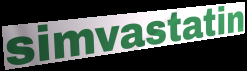
simvastatin